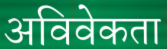
अविवेकता